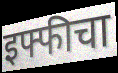
इफ्फीचा